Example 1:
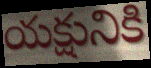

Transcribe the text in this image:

యక్షునికి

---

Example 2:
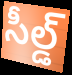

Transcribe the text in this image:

సీల్డ్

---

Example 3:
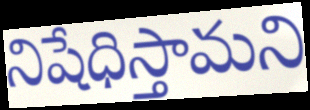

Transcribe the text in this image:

నిషేధిస్తామని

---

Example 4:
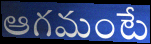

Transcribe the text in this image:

ఆగమంటే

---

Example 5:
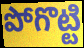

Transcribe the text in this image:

పోగొట్టి